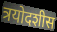
त्रयोदशीस